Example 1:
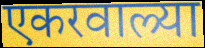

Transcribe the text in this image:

एकरवाल्या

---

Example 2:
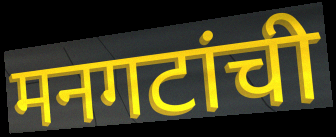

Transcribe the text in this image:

मनगटांची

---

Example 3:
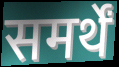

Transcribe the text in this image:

समर्थें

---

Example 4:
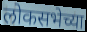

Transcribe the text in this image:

लोकसभेच्या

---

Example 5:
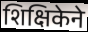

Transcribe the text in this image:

शिक्षिकेने